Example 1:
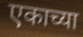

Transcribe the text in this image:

एकाच्या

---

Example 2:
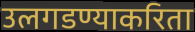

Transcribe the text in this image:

उलगडण्याकरिता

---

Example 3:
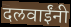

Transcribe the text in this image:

दलवाईंनी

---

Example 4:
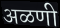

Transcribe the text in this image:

अळणी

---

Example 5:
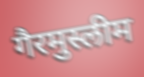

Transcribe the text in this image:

गैरमुस्लीम